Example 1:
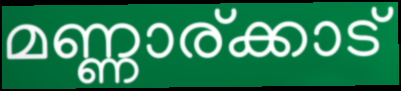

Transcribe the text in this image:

മണ്ണാര്ക്കാട്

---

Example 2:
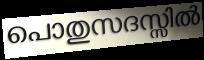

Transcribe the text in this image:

പൊതുസദസ്സിൽ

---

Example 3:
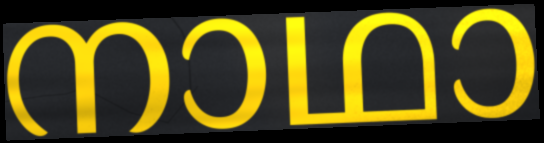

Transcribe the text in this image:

നാഥാ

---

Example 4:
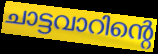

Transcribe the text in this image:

ചാട്ടവാറിന്റെ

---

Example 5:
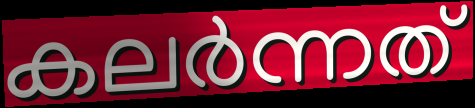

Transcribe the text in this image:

കലർന്നത്